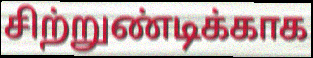
சிற்றுண்டிக்காக